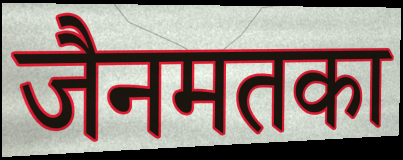
जैनमतका